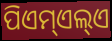
ପିଏମ୍ଏଲ୍ଏ